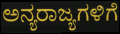
ಅನ್ಯರಾಜ್ಯಗಳಿಗೆ